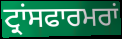
ਟ੍ਰਾਂਸਫਾਰਮਰਾਂ